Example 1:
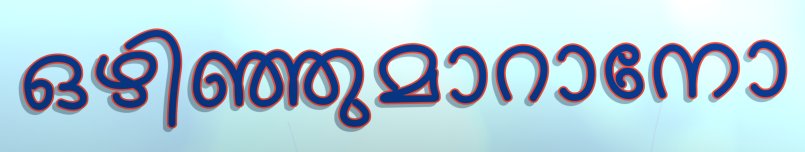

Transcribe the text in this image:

ഒഴിഞ്ഞുമാറാനോ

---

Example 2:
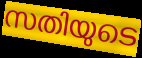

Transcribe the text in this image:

സതിയുടെ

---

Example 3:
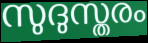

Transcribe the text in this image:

സുദുസ്തരം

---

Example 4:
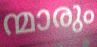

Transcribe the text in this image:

ന്മാരും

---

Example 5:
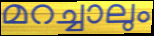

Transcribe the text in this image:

മറച്ചാലും